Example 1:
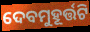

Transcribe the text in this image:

ଦେବମୁହୂର୍ତ୍ତଟି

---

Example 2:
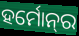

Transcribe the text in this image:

ହର୍ମୋନ୍‌ର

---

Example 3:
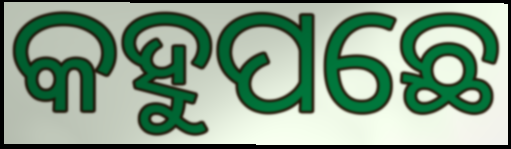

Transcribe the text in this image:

କହୁପଛେ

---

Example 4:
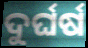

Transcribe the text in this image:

ଦୁର୍ଘର୍ଷ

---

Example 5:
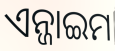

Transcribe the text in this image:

ଏନ୍ଜାଇମ